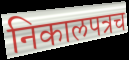
निकालपत्रच